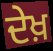
ਦੇਖ਼